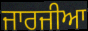
ਜਾਰਜੀਆ